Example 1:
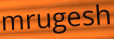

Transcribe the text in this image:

mrugesh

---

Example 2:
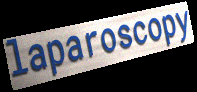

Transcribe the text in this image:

laparoscopy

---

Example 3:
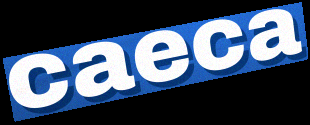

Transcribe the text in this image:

caeca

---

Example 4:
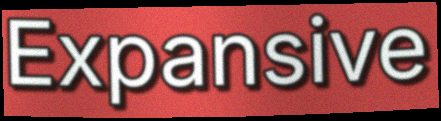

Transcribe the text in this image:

Expansive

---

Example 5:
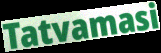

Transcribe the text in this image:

Tatvamasi